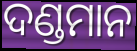
ଦଣ୍ଡମାନ